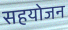
सहयोजन